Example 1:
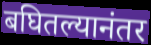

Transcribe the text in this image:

बघितल्यानंतर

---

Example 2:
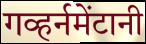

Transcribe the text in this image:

गव्हर्नमेंटानी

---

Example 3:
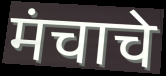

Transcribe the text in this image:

मंचाचे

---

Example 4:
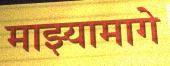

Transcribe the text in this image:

माझ्यामागे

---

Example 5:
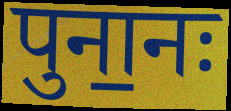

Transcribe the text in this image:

पुना॒नः